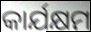
କାର୍ଯକ୍ଷମ